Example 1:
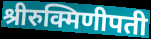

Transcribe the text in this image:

श्रीरुक्मिणीपती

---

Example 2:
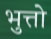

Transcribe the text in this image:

भुत्तो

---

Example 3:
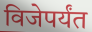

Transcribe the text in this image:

विजेपर्यंत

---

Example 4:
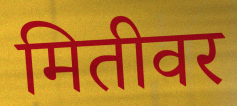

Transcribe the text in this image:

मितीवर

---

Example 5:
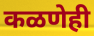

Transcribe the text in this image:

कळणेही